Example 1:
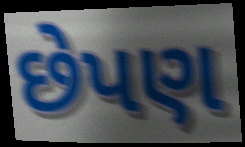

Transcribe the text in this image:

છેપણ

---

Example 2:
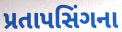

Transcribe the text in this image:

પ્રતાપસિંગના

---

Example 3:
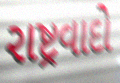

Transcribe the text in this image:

રાષ્ટ્રવાદો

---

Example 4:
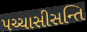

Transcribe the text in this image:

પચ્ચાસીસન્તિ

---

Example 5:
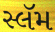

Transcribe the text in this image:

સ્લૅમ